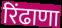
रिंढाणा